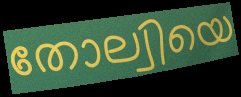
തോല്വിയെ